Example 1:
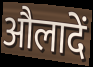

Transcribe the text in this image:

औलादें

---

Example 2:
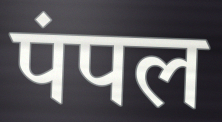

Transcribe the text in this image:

पंपल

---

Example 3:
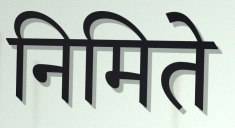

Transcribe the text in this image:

निमिते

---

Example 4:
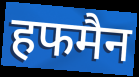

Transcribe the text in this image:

हफमैन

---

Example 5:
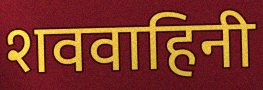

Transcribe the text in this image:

शववाहिनी